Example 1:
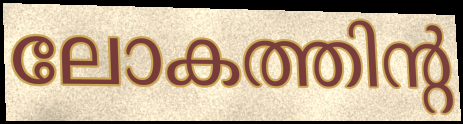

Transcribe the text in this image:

ലോകത്തിന്റ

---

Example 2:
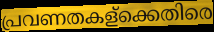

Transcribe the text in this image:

പ്രവണതകള്ക്കെതിരെ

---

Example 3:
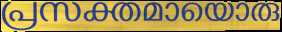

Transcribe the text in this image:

പ്രസക്തമായൊരു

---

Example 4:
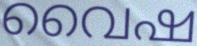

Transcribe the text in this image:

വൈഷ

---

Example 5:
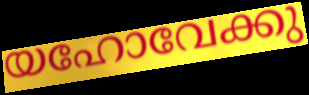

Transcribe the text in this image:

യഹോവേക്കു